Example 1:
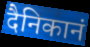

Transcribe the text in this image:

दैनिकानं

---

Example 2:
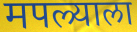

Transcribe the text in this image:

मपल्याला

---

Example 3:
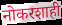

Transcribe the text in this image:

नोकरशाही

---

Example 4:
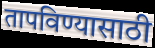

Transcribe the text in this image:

तापविण्यासाठी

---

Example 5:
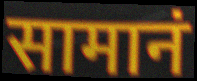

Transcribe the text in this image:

सामानं